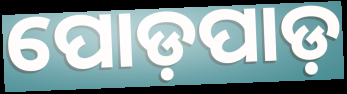
ପୋଡ଼ପାଡ଼